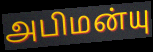
அபிமன்யு